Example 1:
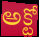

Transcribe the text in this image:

అక్టో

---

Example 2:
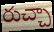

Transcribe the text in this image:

రుచ్చా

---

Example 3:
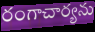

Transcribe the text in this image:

రంగాచార్యను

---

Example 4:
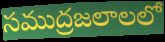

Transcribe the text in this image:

సముద్రజలాలలో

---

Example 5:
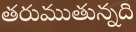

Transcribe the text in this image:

తరుముతున్నది